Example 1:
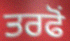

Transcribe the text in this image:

ਤਰਫੋਂ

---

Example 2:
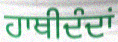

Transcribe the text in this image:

ਹਾਥੀਦੰਦਾਂ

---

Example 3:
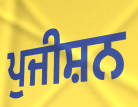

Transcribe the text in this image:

ਪੁਜੀਸ਼ਨ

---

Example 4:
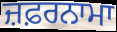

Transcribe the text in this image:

ਜ਼ਫ਼ਰਨਾਮਾ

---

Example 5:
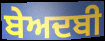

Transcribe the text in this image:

ਬੇਅਦਬੀ